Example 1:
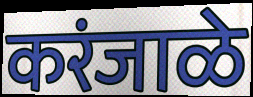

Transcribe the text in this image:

करंजाळे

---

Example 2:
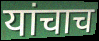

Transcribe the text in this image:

यांचाच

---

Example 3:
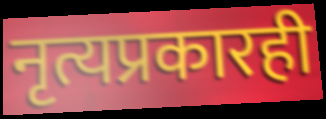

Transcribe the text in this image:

नृत्यप्रकारही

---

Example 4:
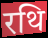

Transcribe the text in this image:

रथि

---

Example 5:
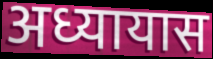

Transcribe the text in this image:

अध्यायास